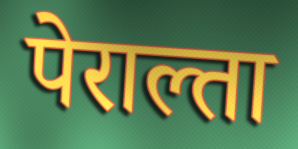
पेराल्ता